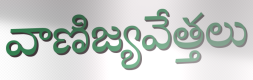
వాణిజ్యవేత్తలు